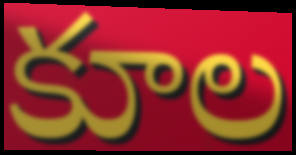
కూల